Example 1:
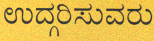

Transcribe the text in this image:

ಉದ್ಗರಿಸುವರು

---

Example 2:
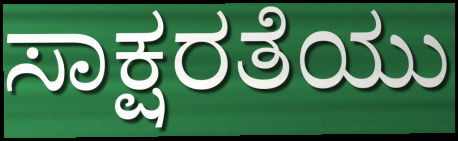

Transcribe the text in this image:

ಸಾಕ್ಷರತೆಯು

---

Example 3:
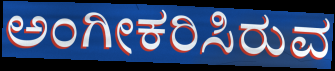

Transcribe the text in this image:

ಅಂಗೀಕರಿಸಿರುವ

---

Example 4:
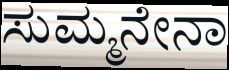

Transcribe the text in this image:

ಸುಮ್ಮನೇನಾ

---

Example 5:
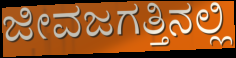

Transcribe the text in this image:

ಜೀವಜಗತ್ತಿನಲ್ಲಿ